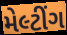
મેલ્ટીંગ